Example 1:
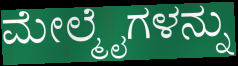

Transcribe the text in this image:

ಮೇಲ್ಮೈಗಳನ್ನು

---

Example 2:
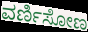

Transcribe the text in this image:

ವರ್ಣಿಸೋಣ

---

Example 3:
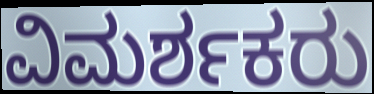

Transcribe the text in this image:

ವಿಮರ್ಶಕರು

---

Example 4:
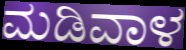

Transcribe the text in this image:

ಮಡಿವಾಳ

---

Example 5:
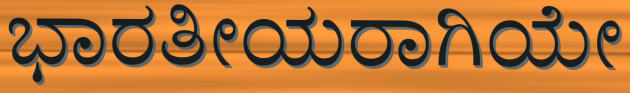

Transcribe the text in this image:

ಭಾರತೀಯರಾಗಿಯೇ